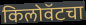
किलोवॅटचा